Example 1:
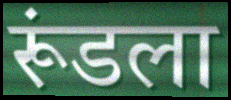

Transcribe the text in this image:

रूंडला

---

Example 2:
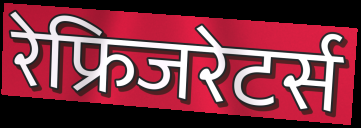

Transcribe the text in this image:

रेफ्रिजरेटर्स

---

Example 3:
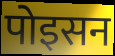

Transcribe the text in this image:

पोइसन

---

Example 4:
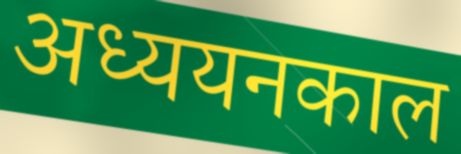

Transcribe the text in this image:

अध्ययनकाल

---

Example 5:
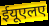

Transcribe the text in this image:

ईयूएलए